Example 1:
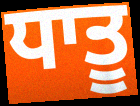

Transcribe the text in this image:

ਧਾਤੂ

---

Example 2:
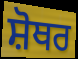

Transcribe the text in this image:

ਸ਼ੋਥਰ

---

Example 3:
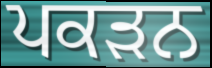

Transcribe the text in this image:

ਪਕੜਨ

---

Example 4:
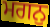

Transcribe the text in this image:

ਮਗਨੁ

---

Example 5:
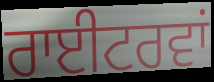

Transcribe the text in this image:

ਰਾਈਟਰਵਾਂ